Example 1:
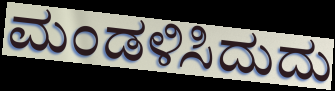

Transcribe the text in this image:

ಮಂಡಳಿಸಿದುದು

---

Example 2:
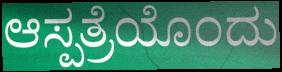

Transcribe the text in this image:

ಆಸ್ಪತ್ರೆಯೊಂದು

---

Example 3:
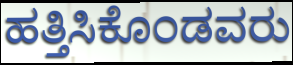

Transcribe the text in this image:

ಹತ್ತಿಸಿಕೊಂಡವರು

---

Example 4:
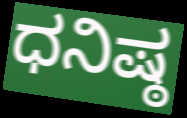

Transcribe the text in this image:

ಧನಿಷ್ಠ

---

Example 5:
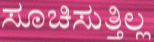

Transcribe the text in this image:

ಸೂಚಿಸುತ್ತಿಲ್ಲ